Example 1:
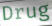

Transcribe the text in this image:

Drug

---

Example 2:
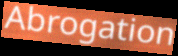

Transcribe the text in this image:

Abrogation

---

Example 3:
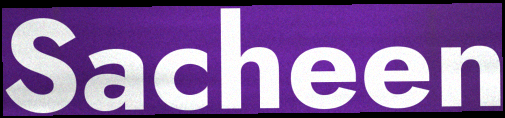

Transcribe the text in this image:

Sacheen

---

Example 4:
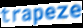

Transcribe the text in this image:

trapeze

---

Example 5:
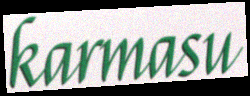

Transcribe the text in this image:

karmasu